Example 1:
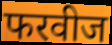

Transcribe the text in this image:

फरवीज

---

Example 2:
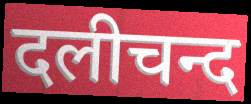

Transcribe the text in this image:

दलीचन्द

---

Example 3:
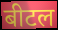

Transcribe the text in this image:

बीटल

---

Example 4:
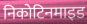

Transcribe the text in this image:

निकोटिनमाइड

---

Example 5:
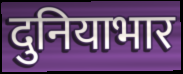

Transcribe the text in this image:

दुनियाभार